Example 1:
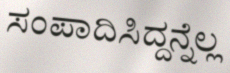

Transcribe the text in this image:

ಸಂಪಾದಿಸಿದ್ದನ್ನೆಲ್ಲ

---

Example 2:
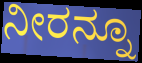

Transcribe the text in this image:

ನೀರನ್ನೂ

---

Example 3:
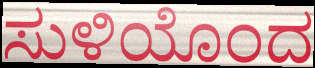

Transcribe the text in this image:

ಸುಳಿಯೊಂದ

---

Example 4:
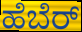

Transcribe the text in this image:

ಹೆಬೆರ್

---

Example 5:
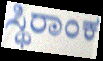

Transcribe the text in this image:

ಸ್ಥಿರಾಂಕ